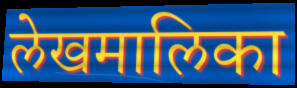
लेखमालिका